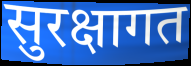
सुरक्षागत